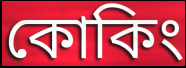
কোকিং